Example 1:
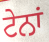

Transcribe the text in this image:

ਟੇਨਾਂ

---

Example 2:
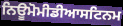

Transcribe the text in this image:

ਨਿਊਮੋਮੀਡੀਆਸਟਿਨਮ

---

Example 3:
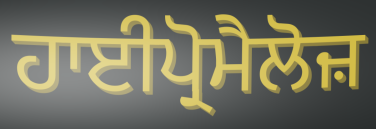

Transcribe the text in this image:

ਹਾਈਪ੍ਰੋਮੈਲੋਜ਼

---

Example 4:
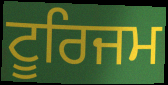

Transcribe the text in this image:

ਟੂਰਿਜਮ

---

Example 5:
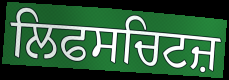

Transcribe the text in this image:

ਲਿਫਸਚਿਟਜ਼